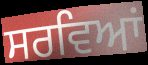
ਸਰਵਿਆਂ